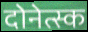
दोनेत्स्क